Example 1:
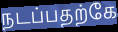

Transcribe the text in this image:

நடப்பதற்கே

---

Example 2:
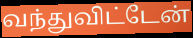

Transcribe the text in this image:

வந்துவிட்டேன்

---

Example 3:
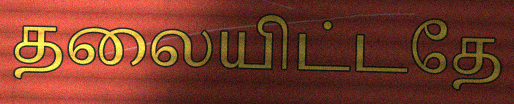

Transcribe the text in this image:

தலையிட்டதே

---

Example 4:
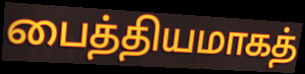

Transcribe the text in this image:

பைத்தியமாகத்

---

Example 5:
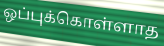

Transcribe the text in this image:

ஒப்புக்கொள்ளாத